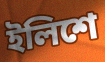
ইলিশে